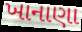
ખાનાણા